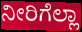
ನೀರಿಗೆಲ್ಲಾ